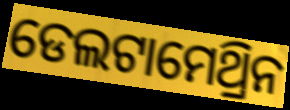
ଡେଲଟାମେଥ୍ରିନ